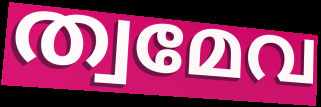
ത്വമേവ